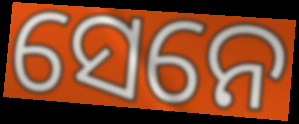
ସେନେ